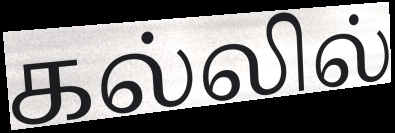
கல்லில்